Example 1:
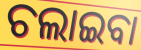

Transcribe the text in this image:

ଚଲାଇବା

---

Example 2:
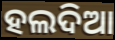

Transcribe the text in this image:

ହଲଦିଆ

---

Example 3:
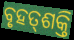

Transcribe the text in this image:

ବୃହତ୍‌ଶକ୍ତି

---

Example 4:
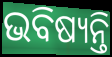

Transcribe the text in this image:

ଭବିଷ୍ୟନ୍ତି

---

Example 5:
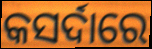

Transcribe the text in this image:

କସର୍ଦାରେ